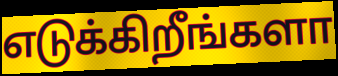
எடுக்கிறீங்களா